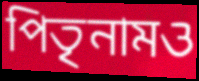
পিতৃনামও